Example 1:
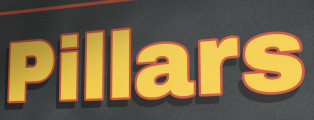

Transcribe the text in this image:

Pillars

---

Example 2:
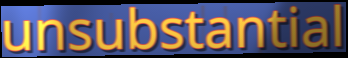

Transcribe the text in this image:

unsubstantial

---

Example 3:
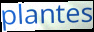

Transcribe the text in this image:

plantes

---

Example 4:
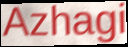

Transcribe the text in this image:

Azhagi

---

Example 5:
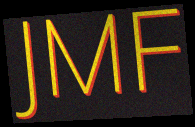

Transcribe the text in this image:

JMF